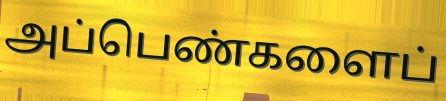
அப்பெண்களைப்